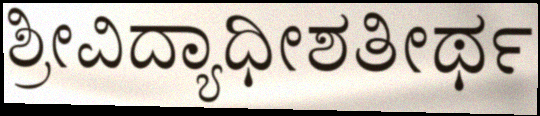
ಶ್ರೀವಿದ್ಯಾಧೀಶತೀರ್ಥ